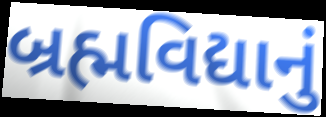
બ્રહ્મવિદ્યાનું